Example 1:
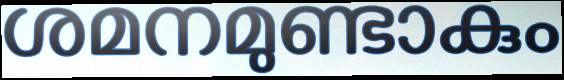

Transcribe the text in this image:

ശമനമുണ്ടാകും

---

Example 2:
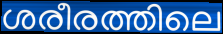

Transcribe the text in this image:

ശരീരത്തിലെ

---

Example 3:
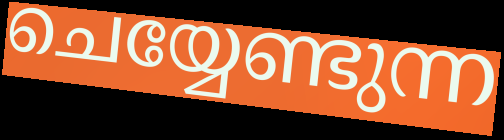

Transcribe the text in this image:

ചെയ്യേണ്ടുന്ന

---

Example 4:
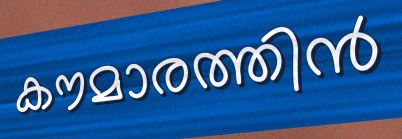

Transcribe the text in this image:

കൗമാരത്തിൻ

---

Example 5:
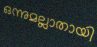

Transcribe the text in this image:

ഒന്നുമല്ലാതായി